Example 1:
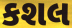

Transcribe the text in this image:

કશલ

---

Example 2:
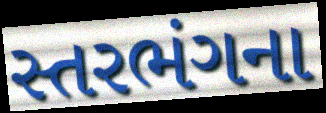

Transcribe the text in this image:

સ્તરભંગના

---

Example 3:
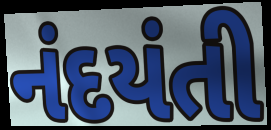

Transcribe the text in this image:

નંદયંતી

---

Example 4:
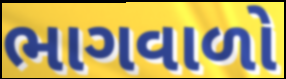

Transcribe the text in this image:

ભાગવાળો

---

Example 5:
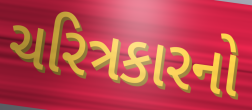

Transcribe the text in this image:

ચરિત્રકારનો